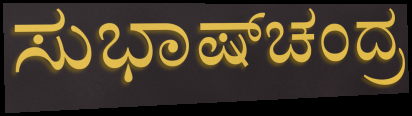
ಸುಭಾಷ್‌ಚಂದ್ರ